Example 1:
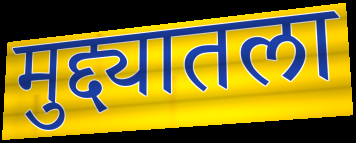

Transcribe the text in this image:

मुद्द्यातला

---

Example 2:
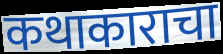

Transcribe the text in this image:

कथाकाराचा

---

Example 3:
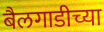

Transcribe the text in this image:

बैलगाडीच्या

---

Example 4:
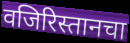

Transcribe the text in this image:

वजिरिस्तानचा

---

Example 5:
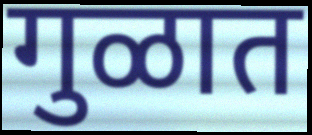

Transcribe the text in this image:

गुळात